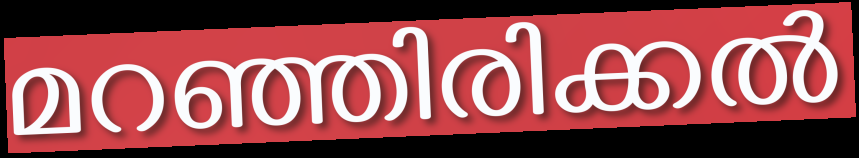
മറഞ്ഞിരിക്കൽ